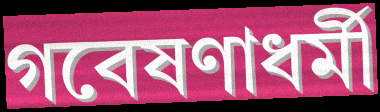
গবেষণাধর্মী